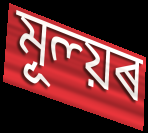
মূল্য়ৰ